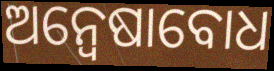
ଅନ୍ୱେଷାବୋଧ